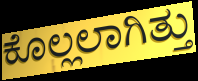
ಕೊಲ್ಲಲಾಗಿತ್ತು